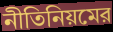
নীতিনিয়মের